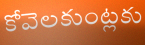
కోవెలకుంట్లకు